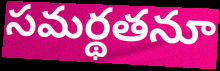
సమర్థతనూ